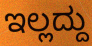
ಇಲ್ಲದ್ದು